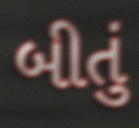
બીતું